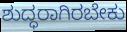
ಶುದ್ಧರಾಗಿರಬೇಕು